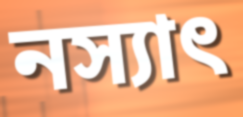
নস্যাৎ